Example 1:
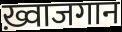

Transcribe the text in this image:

ख़्वाजगान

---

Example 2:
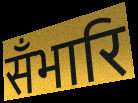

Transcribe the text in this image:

सँभारि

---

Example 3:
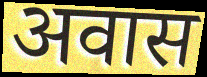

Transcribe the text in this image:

अवास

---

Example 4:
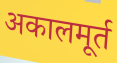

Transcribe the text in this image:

अकालमूर्त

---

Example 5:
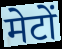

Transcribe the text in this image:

मेटों